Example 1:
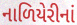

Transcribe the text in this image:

નાળિયેરીનાં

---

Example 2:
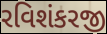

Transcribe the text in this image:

રવિશંકરજી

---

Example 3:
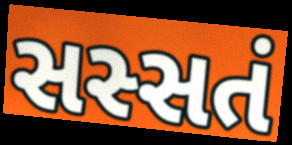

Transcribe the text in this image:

સસ્સતં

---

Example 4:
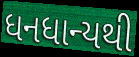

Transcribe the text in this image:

ધનધાન્યથી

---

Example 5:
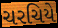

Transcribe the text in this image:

ચરચિયે